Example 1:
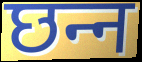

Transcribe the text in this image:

छन्न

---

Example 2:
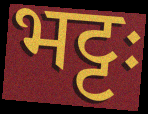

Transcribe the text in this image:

भट्टः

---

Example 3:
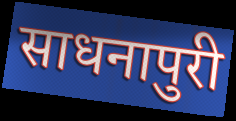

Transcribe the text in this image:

साधनापुरी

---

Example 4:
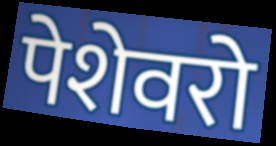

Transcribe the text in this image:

पेशेवरो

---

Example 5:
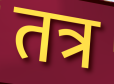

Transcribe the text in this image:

तत्र